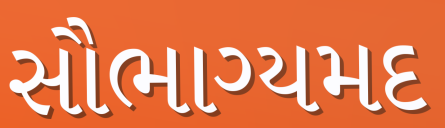
સૌભાગ્યમદ